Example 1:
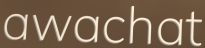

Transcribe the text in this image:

awachat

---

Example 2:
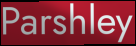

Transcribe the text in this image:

Parshley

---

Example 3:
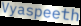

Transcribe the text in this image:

Vyaspeeth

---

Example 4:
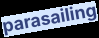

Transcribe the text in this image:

parasailing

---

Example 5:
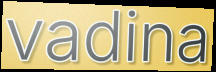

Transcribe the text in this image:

vadina